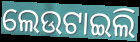
ଲେଉଟାଇଲି